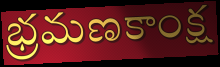
భ్రమణకాంక్ష